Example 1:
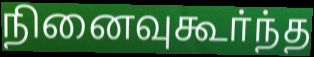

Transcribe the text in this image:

நினைவுகூர்ந்த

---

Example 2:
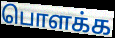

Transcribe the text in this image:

பொளக்க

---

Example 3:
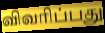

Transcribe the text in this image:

விவரிப்பது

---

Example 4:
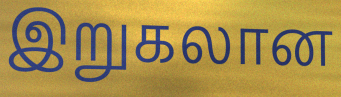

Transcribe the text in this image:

இறுகலான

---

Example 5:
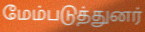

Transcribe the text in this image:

மேம்படுத்துனர்